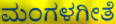
ಮಂಗಳಗೀತೆ